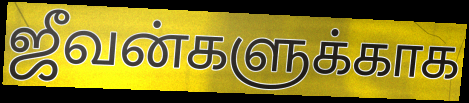
ஜீவன்களுக்காக